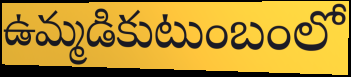
ఉమ్మడికుటుంబంలో